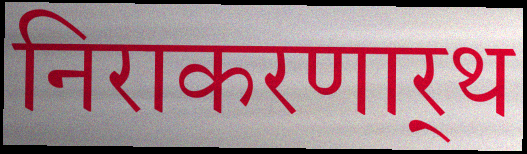
निराकरणार्थ